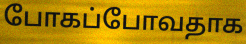
போகப்போவதாக